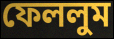
ফেললুম